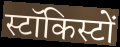
स्टॉकिस्टों